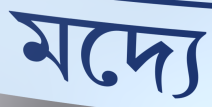
মদ্যে